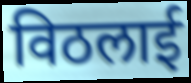
विठलाई